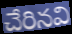
చేరినవి